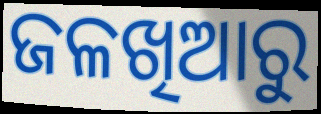
ଜଳଖିଆରୁ